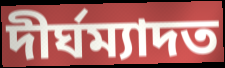
দীৰ্ঘম্যাদত